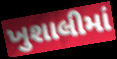
ખુશાલીમાં